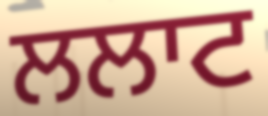
ਲਲਾਟ